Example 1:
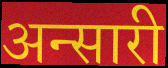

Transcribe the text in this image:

अन्सारी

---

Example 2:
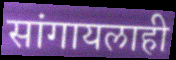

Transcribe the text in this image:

सांगायलाही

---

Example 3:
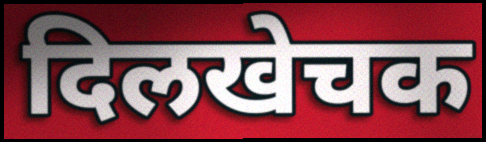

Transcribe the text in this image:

दिलखेचक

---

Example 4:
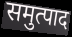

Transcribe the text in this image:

समुत्पाद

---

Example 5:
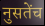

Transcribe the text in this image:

नुसतेंच